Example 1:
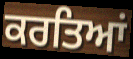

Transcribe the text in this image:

ਕਰਤਿਆਂ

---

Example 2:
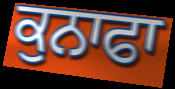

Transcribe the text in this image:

ਕੁਨਾਫਾ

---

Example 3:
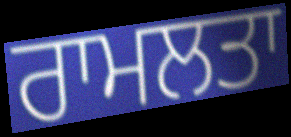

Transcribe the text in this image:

ਰਾਮਲਤਾ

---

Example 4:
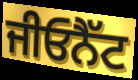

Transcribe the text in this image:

ਜੀਓਨੈੱਟ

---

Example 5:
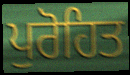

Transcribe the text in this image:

ਪੁਰੋਹਿਤ